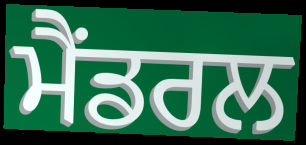
ਮੈਂਡਰਲ